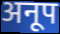
अनूप